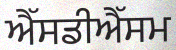
ਐੱਸਡੀਐੱਸਮ